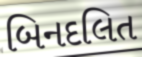
બિનદલિત